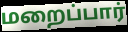
மறைப்பார்